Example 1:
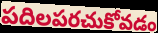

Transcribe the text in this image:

పదిలపరచుకోవడం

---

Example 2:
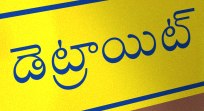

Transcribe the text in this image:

డెట్రాయిట్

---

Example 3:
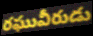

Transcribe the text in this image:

రఘువీరుడు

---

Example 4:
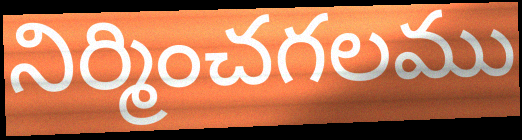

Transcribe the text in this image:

నిర్మించగలము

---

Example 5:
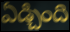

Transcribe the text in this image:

ఏడ్చింది